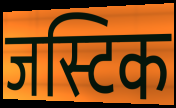
जस्टिक